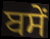
ਬਸੇਂ